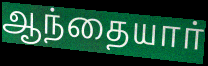
ஆந்தையார்